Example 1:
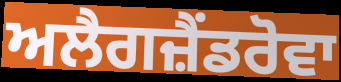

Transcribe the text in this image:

ਅਲੈਗਜ਼ੈਂਡਰੋਵਾ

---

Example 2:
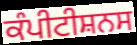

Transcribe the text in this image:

ਕੰਪੀਟੀਸ਼ਨਸ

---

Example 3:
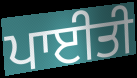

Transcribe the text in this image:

ਪਾਈਤੀ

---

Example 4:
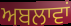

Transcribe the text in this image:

ਅਬਲਾਵਾਂ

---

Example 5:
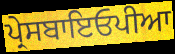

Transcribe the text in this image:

ਪ੍ਰੇਸਬਾਇਓਪੀਆ